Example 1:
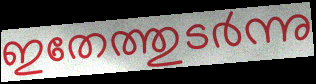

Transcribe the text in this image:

ഇതേത്തുടർന്നു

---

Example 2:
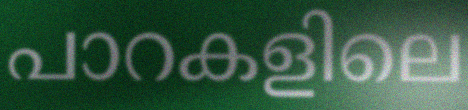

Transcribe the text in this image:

പാറകളിലെ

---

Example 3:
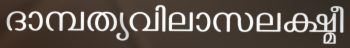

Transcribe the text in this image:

ദാമ്പത്യവിലാസലക്ഷ്മീ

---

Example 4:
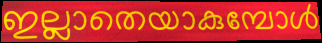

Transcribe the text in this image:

ഇല്ലാതെയാകുമ്പോൾ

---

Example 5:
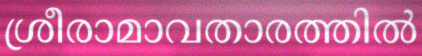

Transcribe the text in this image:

ശ്രീരാമാവതാരത്തിൽ